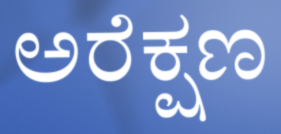
ಅರೆಕ್ಷಣ